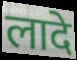
लादे